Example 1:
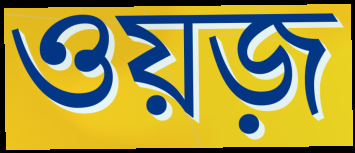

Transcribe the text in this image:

ওয়জ়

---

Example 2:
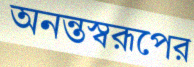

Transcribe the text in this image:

অনন্তস্বরূপের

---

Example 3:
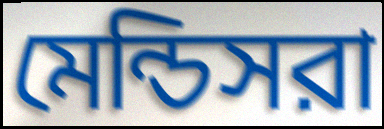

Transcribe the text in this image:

মেন্ডিসরা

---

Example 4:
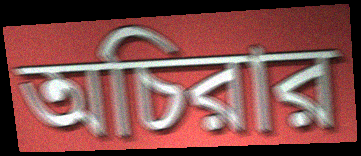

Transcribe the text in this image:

অচিরার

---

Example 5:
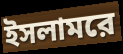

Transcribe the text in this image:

ইসলামরে